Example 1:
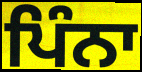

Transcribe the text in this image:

ਪਿੰਨਾ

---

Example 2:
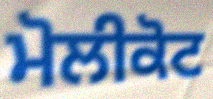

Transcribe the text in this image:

ਮੋਲੀਕੋਟ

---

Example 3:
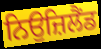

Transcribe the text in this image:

ਨਿਉਜ਼ਿਲੈਂਡ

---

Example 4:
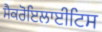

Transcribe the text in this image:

ਸੈਕਰੋਇਲਾਈਟਿਸ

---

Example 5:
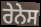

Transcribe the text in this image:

ਰੇਨੇਸ